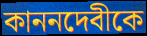
কাননদেবীকে